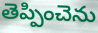
తెప్పించెను